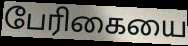
பேரிகையை